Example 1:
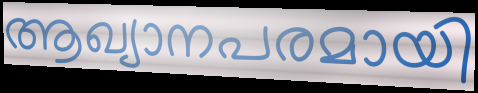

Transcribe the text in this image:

ആഖ്യാനപരമായി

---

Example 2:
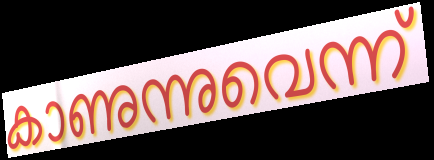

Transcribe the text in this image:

കാണുന്നുവെന്ന്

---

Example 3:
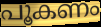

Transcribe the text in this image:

പൂകണം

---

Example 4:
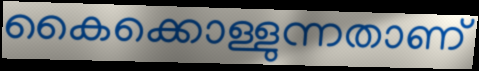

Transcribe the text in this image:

കൈക്കൊള്ളുന്നതാണ്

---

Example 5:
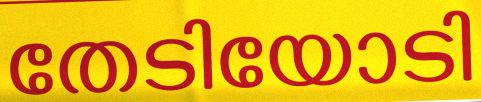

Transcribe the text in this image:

തേടിയോടി